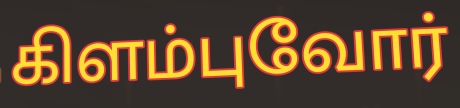
கிளம்புவோர்